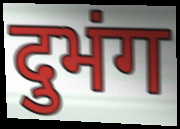
दुभंग